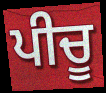
ਪੀਚੂ